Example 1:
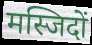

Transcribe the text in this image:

मस्जिदों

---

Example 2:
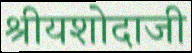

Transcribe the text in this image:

श्रीयशोदाजी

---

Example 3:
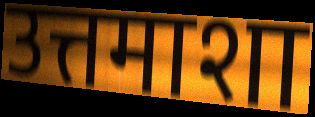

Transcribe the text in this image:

उत्तमाशा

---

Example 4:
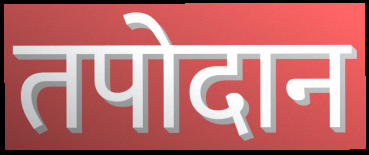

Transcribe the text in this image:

तपोदान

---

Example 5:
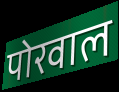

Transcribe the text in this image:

पोरवाल